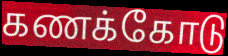
கணக்கோடு